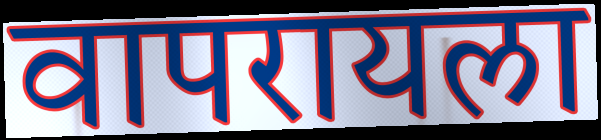
वापरायला